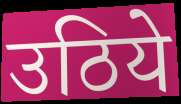
उठिये